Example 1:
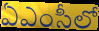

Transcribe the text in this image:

ఏఎంసీలో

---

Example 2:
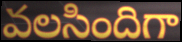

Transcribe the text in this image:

వలసిందిగా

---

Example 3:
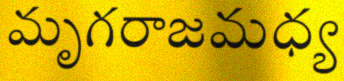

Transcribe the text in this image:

మృగరాజమధ్య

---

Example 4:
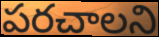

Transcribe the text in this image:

పరచాలని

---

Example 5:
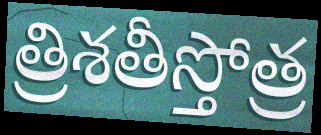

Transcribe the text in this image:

త్రిశతీస్తోత్ర